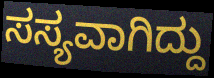
ಸಸ್ಯವಾಗಿದ್ದು